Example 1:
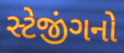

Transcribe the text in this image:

સ્ટેજીંગનો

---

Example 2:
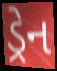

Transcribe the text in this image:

ડ્રેન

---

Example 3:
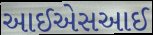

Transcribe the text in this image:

આઈએસઆઈ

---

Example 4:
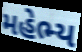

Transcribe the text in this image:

મહેભ્ય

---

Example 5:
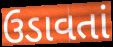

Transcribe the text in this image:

ઉડાવતાં